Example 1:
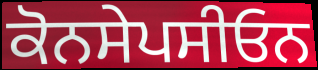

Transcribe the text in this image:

ਕੋਨਸੇਪਸੀਓਨ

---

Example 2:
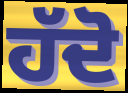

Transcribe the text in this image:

ਹੱਦੋ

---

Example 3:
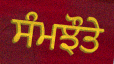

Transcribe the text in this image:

ਸੰਮਝੌਤੇ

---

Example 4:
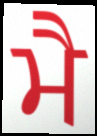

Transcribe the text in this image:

ਮੈ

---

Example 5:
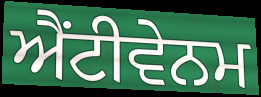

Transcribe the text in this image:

ਐਂਟੀਵੇਨਮ